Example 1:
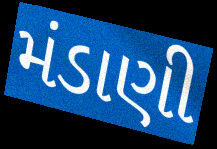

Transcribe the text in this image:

મંડાણી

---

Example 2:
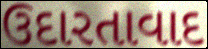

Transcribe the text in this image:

ઉદારતાવાદ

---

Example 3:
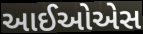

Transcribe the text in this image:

આઈઓએસ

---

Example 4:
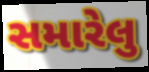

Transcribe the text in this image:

સમારેલુ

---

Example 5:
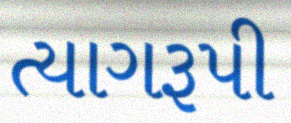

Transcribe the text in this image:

ત્યાગરૂપી